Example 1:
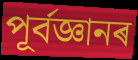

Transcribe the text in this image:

পূৰ্বজ্ঞানৰ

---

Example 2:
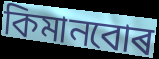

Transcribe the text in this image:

কিমানবোৰ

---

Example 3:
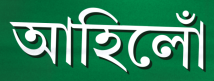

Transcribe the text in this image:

আহিলোঁ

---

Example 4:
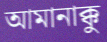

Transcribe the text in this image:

আমানাক্কু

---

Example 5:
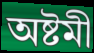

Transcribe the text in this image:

অষ্টমী